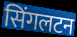
सिंगलटन